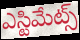
ఎస్టిమేట్స్